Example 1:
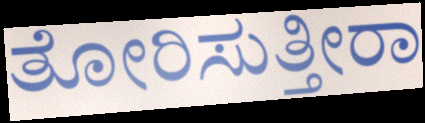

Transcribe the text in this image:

ತೋರಿಸುತ್ತೀರಾ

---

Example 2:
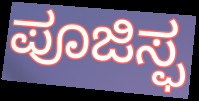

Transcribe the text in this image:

ಪೂಜಿಸ್ಫ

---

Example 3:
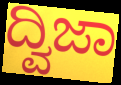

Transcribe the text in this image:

ದ್ವಿಜಾ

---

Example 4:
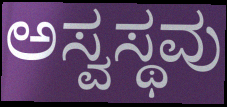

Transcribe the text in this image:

ಅಸ್ವಸ್ಥವು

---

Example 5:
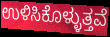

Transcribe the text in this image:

ಉಳಿಸಿಕೊಳ್ಳುತ್ತವೆ